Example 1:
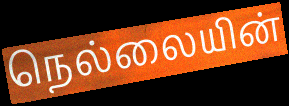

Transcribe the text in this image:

நெல்லையின்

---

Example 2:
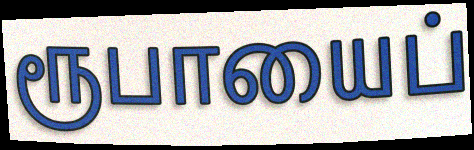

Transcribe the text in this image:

ரூபாயைப்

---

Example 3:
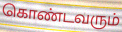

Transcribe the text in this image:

கொண்டவரும்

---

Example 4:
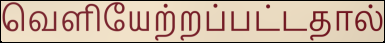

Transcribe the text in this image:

வெளியேற்றப்பட்டதால்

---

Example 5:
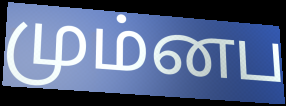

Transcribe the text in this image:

மும்னப